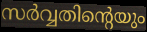
സർവ്വതിന്റെയും